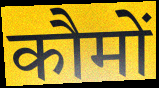
कौमों